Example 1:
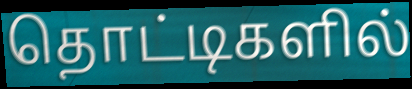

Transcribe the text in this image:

தொட்டிகளில்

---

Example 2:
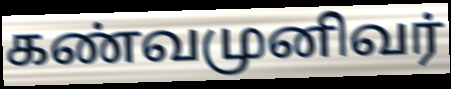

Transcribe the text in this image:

கண்வமுனிவர்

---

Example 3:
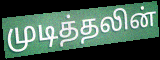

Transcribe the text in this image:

முடித்தலின்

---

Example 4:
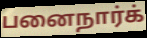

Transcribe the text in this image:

பனைநார்க்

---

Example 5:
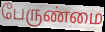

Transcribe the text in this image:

பேருண்மை